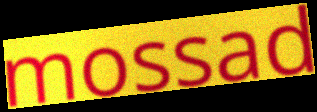
mossad